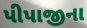
પીપાજીના